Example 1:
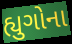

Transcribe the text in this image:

હ્યુગોના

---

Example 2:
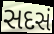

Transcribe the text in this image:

સદસં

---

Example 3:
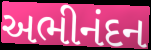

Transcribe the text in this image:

અભીનંદન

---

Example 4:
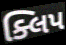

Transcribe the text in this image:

ક્લિપ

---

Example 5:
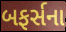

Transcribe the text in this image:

બફર્સના